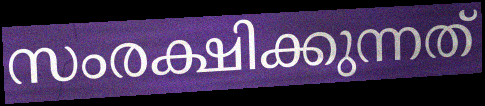
സംരക്ഷിക്കുന്നത്